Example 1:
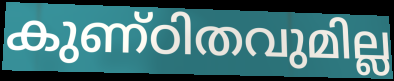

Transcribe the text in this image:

കുണ്ഠിതവുമില്ല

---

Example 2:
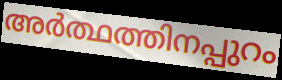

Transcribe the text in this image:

അർത്ഥത്തിനപ്പുറം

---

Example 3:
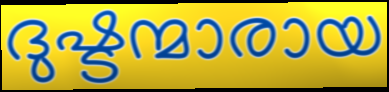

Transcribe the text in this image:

ദുഷ്ടന്മാരായ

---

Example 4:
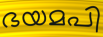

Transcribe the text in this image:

ഭയമപി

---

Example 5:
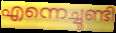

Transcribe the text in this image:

എന്നെച്ചൂണ്ടി